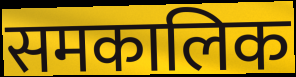
समकालिक